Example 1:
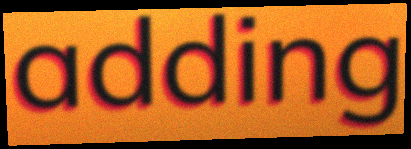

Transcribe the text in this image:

adding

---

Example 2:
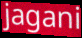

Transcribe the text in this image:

jagani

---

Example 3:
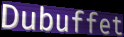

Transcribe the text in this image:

Dubuffet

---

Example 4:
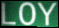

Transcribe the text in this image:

LOY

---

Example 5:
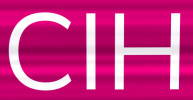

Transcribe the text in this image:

CIH